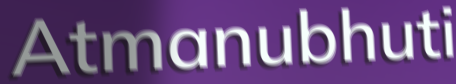
Atmanubhuti